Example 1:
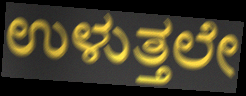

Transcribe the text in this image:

ಉಳುತ್ತಲೇ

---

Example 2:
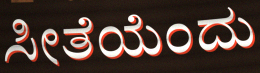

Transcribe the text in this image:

ಸೀತೆಯೆಂದು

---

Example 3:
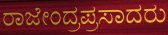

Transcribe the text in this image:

ರಾಜೇಂದ್ರಪ್ರಸಾದರು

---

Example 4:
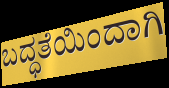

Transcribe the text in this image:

ಬದ್ಧತೆಯಿಂದಾಗಿ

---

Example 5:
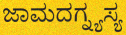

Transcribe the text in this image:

ಜಾಮದಗ್ನ್ಯಸ್ಯ